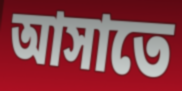
আসাতে